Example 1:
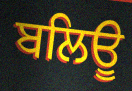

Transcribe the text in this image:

ਬਲਿਊ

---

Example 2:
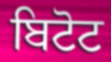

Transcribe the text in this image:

ਬਿਟੋਟ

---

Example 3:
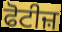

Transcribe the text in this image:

ਫੋਟੀਜ਼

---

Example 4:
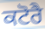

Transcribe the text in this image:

ਕਟੋਰੈ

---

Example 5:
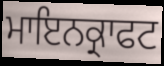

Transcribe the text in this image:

ਮਾਇਨਕ੍ਰਾਫਟ